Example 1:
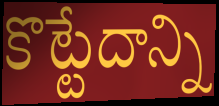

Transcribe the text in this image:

కొట్టేదాన్ని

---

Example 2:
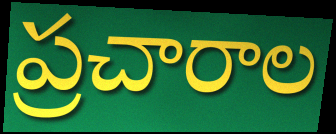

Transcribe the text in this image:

ప్రచారాల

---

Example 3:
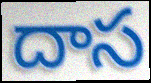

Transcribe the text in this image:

దాస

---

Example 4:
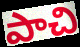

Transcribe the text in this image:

పాచి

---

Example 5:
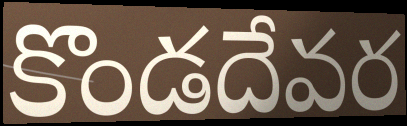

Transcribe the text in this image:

కొండదేవర